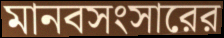
মানবসংসারের